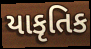
યાકૃતિક